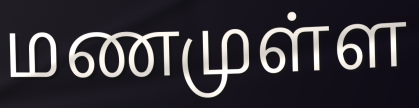
மணமுள்ள